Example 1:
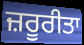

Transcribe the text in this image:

ਜ਼ਰੂਰੀਤਾ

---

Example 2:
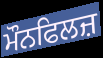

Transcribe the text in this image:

ਮੌਨਫਿਲਜ਼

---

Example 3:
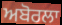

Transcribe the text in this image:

ਅਬੋਰਲਾ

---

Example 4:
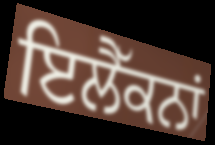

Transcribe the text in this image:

ਇਲੈੱਕਨਾਂ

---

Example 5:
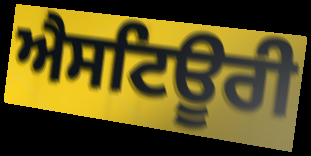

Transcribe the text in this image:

ਐਸਟਿਊਰੀ